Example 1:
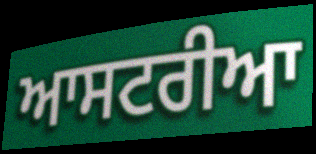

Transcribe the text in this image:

ਆਸਟਰੀਆ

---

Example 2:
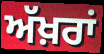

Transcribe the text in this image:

ਅੱਖ਼ਰਾਂ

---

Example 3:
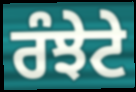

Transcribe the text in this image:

ਰੰਝੇਟੇ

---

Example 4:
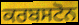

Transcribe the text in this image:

ਕਰਬਸਟੋਨ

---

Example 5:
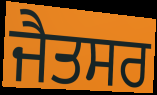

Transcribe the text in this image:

ਜੈਤਸਰ